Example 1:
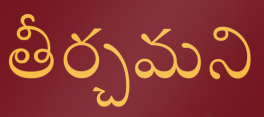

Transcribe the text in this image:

తీర్చమని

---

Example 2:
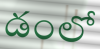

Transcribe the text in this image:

డంలో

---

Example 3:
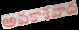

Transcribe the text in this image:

అవకాశవాద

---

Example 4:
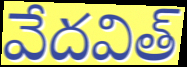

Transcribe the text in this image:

వేదవిత్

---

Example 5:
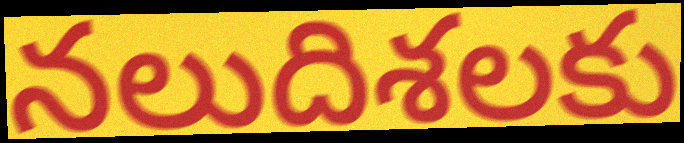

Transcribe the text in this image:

నలుదిశలకు